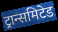
ट्रान्समिटेड